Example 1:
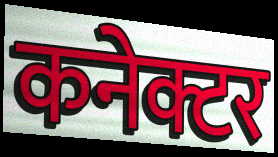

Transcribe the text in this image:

कनेक्टर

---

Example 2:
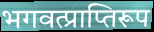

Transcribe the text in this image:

भगवत्प्राप्तिरूप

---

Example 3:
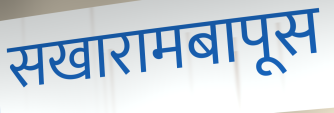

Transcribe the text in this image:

सखारामबापूस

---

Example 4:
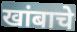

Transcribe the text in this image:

खांबाचे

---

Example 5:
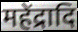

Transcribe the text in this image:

महेंद्रादि